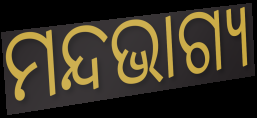
ମନ୍ଦଭାଗ୍ୟ